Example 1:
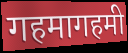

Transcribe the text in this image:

गहमागहमी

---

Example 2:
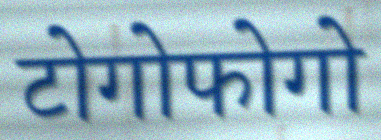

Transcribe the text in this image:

टोगोफोगो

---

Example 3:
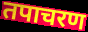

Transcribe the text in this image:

तपाचरण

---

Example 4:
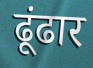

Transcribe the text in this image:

ढूंढार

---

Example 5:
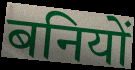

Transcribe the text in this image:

बनियों